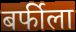
बर्फीला